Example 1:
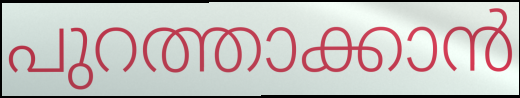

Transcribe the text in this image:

പുറത്താക്കാൻ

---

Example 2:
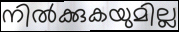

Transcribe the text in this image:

നിൽക്കുകയുമില്ല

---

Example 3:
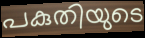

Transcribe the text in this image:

പകുതിയുടെ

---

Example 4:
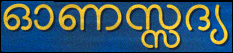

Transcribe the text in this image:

ഓണസ്സദ്യ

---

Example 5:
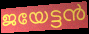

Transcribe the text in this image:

ജയേട്ടൻ